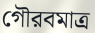
গৌরবমাত্র